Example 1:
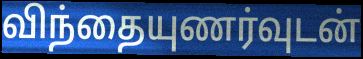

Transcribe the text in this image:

விந்தையுணர்வுடன்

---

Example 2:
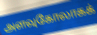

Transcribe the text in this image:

அளவுகோலாகக்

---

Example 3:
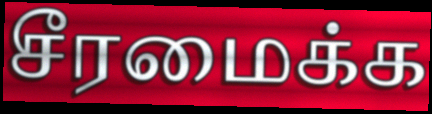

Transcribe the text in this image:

சீரமைக்க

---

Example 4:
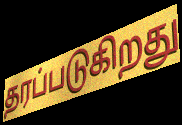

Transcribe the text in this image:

தரப்படுகிறது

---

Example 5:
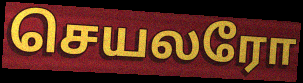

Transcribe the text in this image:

செயலரோ